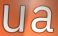
ua